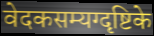
वेदकसम्यग्दृष्टिके